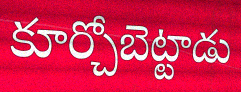
కూర్చోబెట్టాడు